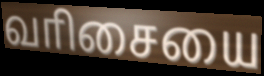
வரிசையை